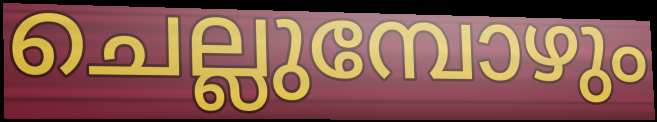
ചെല്ലുമ്പോഴും